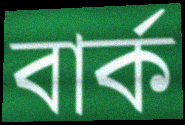
বার্ক